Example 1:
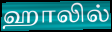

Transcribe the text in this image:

ஹாலில்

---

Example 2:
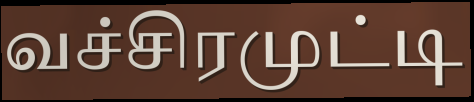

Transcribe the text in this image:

வச்சிரமுட்டி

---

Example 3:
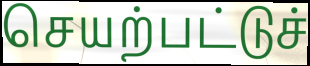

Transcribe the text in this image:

செயற்பட்டுச்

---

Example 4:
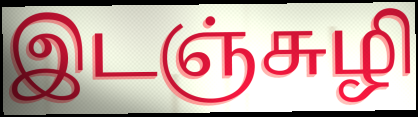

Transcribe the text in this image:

இடஞ்சுழி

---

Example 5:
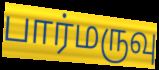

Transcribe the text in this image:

பார்மருவு